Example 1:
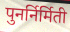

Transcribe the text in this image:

पुनर्निर्मिती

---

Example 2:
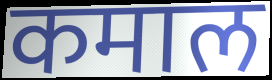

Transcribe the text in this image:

कमाल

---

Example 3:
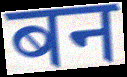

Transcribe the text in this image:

बन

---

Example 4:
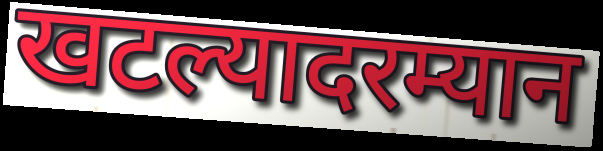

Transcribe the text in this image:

खटल्यादरम्यान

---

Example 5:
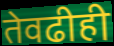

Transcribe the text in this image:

तेवढीही